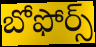
బోఫోర్స్